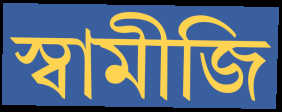
স্বামীজি